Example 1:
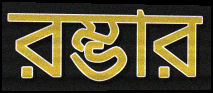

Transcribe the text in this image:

রম্ভার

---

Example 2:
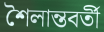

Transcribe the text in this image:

শৈলান্তবর্তী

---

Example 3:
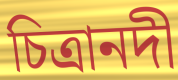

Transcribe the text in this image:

চিত্রানদী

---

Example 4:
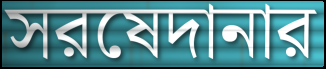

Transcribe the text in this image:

সরষেদানার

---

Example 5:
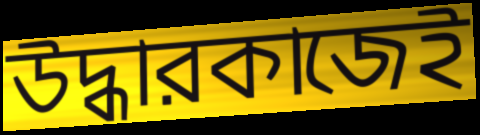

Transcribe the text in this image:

উদ্ধারকাজেই